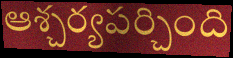
ఆశ్చర్యపర్చింది